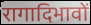
रागादिभावों